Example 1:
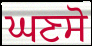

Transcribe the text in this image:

ਘਣਸੋ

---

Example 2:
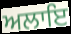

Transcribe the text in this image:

ਅਲਾਇ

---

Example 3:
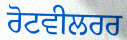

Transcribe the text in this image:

ਰੋਟਵੀਲਰਰ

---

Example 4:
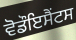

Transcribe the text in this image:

ਵੋਡੌਇਸੈਂਟਸ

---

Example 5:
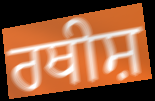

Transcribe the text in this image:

ਰਥੀਸ਼